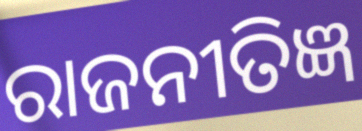
ରାଜନୀତିଜ୍ଞ